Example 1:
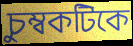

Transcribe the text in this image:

চুম্বকটিকে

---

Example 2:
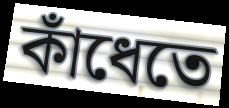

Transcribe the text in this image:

কাঁধেতে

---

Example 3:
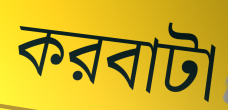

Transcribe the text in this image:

করবাটা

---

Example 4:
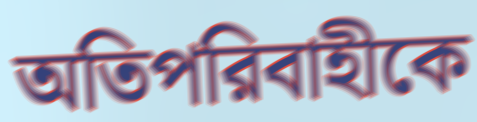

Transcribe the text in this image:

অতিপরিবাহীকে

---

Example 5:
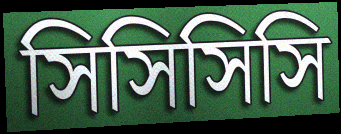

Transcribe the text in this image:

সিসিসিসি